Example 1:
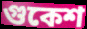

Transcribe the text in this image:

গুকেশ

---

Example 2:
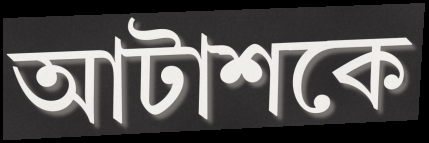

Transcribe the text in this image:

আটাশকে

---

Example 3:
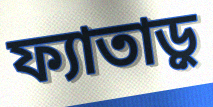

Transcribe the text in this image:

ফ্যাতাড়ু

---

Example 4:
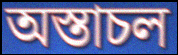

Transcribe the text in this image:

অস্তাচল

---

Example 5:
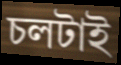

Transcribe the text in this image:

চলটাই